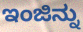
ಇಂಜಿನ್ನು